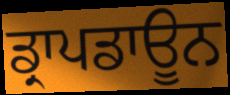
ਡ੍ਰਾਪਡਾਊਨ